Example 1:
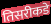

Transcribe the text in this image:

तिसरीकडे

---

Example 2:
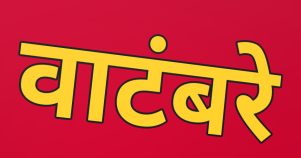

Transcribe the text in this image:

वाटंबरे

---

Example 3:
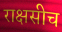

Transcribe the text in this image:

राक्षसीच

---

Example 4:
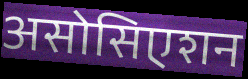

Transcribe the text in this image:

असोसिएशन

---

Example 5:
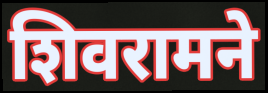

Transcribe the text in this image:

शिवरामने